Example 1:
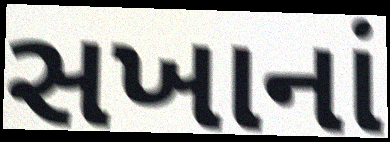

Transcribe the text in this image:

સખાનાં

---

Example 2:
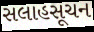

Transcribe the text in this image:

સલાહસૂચન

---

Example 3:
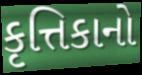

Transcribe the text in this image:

કૃત્તિકાનો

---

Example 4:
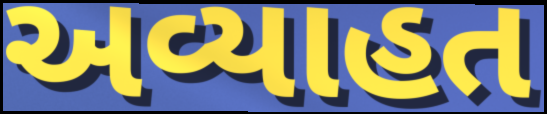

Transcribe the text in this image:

અવ્યાહત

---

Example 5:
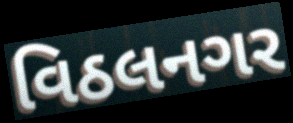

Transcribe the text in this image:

વિઠલનગર